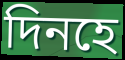
দিনহে